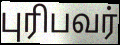
புரிபவர்